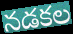
నడకల